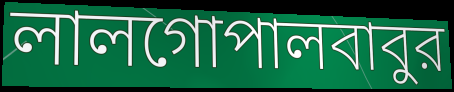
লালগোপালবাবুর